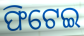
ଫିଟେଇ